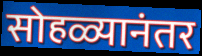
सोहळ्यानंतर